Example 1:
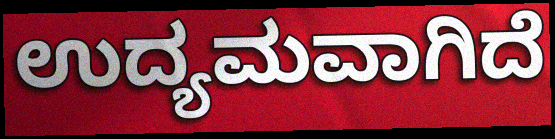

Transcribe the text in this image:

ಉದ್ಯಮವಾಗಿದೆ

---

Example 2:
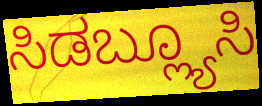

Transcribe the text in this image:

ಸಿಡಬ್ಲ್ಯೂಸಿ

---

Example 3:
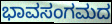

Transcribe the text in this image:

ಭಾವಸಂಗಮದ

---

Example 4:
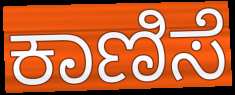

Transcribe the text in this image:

ಕಾಣಿಸೆ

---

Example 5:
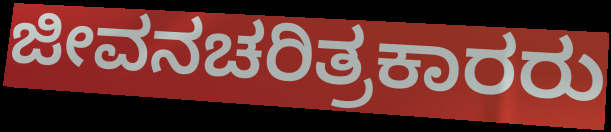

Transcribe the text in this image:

ಜೀವನಚರಿತ್ರಕಾರರು